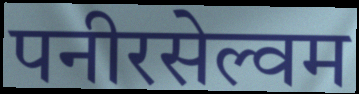
पनीरसेल्वम